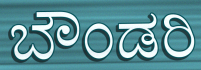
ಬೌಂಡರಿ